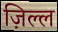
ज़िल्ल